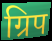
ग्रिप